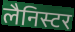
लैनिस्टर